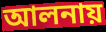
আলনায়